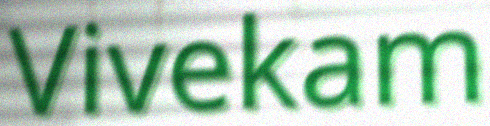
Vivekam